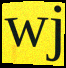
wj